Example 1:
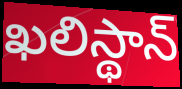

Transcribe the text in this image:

ఖలిస్థాన్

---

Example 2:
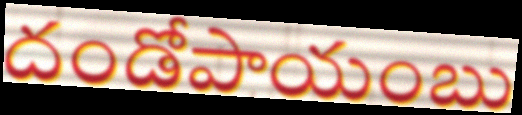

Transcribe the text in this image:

దండోపాయంబు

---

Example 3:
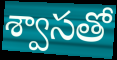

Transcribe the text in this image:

శ్వాసతో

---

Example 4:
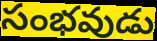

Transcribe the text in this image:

సంభవుడు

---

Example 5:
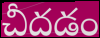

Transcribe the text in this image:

చీదడం